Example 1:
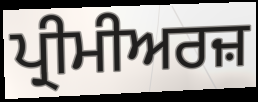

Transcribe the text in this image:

ਪ੍ਰੀਮੀਅਰਜ਼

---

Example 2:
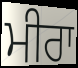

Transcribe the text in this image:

ਮੀਰਾ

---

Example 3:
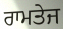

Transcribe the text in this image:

ਰਾਮਤੇਜ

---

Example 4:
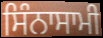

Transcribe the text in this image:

ਸਿੰਨਾਸਾਮੀ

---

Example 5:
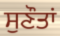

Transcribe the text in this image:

ਸੁਣੌਤਾਂ